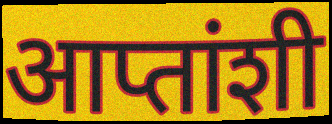
आप्तांशी